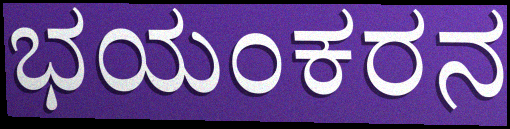
ಭಯಂಕರನ